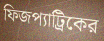
ফিজপ্যাট্রিকের